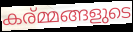
കര്മ്മങ്ങളുടെ